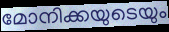
മോനിക്കയുടെയും